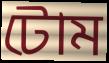
টোম